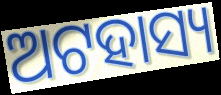
ଅଟହାସ୍ୟ